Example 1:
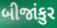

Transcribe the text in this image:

બીજાંકુર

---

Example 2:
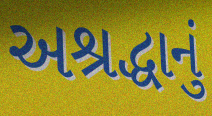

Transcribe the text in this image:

અશ્રદ્ધાનું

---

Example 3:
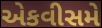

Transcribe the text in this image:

એકવીસમે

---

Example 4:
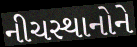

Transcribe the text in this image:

નીચસ્થાનોને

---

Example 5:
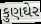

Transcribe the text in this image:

કુણઘેર